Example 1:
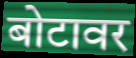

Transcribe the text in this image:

बोटावर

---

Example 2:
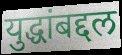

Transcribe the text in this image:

युद्धांबद्दल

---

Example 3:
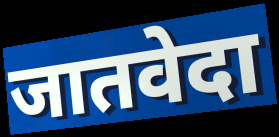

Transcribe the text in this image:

जातवेदा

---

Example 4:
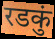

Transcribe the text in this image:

रडकुं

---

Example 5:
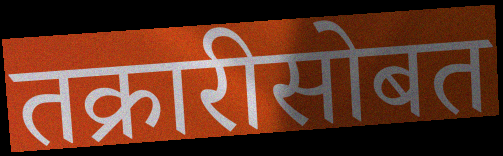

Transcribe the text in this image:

तक्रारीसोबत